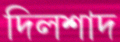
দিলশাদ